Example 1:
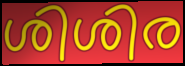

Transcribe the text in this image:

ശിശിര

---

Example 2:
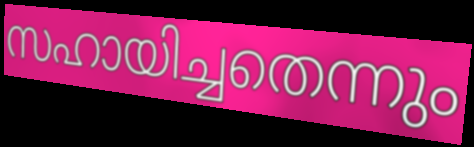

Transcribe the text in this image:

സഹായിച്ചതെന്നും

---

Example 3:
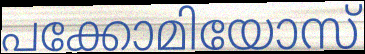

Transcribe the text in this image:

പക്കോമിയോസ്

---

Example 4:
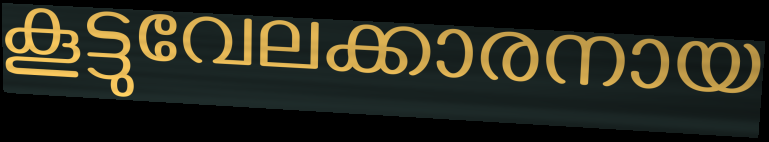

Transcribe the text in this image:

കൂട്ടുവേലക്കാരനായ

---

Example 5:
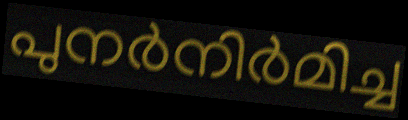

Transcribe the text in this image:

പുനർനിർമിച്ച